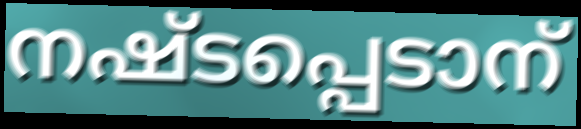
നഷ്ടപ്പെടാന്